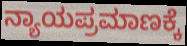
ನ್ಯಾಯಪ್ರಮಾಣಕ್ಕೆ